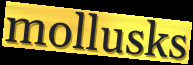
mollusks